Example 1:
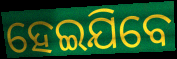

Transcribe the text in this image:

ହେଇଯିବେ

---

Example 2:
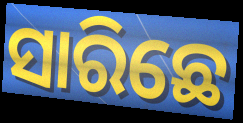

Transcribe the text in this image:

ସାରିଛେ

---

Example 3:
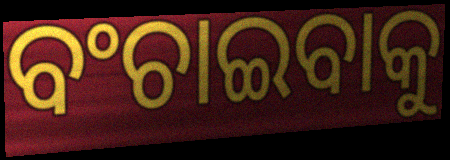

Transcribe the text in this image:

ବଂଚାଇବାକୁ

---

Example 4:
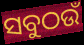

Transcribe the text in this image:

ସବୁଠଉଁ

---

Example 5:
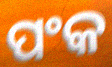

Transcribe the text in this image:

ପଂକ